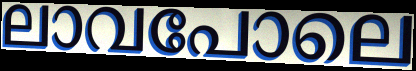
ലാവപോലെ